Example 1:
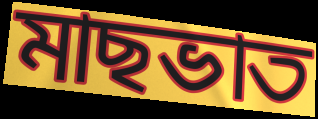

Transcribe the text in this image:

মাছভাত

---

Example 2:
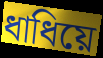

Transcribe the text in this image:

ধাধিয়ে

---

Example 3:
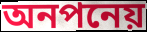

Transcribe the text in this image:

অনপনেয়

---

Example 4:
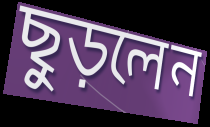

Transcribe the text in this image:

ছুড়লেন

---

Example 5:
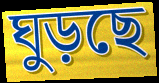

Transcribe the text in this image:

ঘুড়ছে